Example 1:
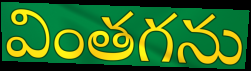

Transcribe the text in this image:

వింతగను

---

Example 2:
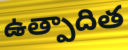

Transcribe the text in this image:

ఉత్పాదిత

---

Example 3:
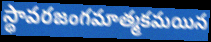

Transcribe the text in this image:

స్థావరజంగమాత్మకమయిన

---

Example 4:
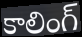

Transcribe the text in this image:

కాలింగ్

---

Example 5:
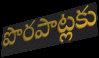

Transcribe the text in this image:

పొరపాట్లకు